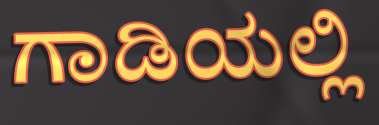
ಗಾಡಿಯಲ್ಲಿ